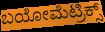
ಬಯೋಮೆಟ್ರಿಕ್ಸ್